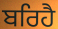
ਬਰਿਹੈ